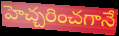
హెచ్చరించగానే